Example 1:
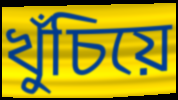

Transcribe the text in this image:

খুঁচিয়ে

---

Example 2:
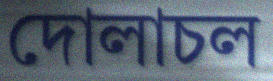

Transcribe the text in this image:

দোলাচল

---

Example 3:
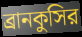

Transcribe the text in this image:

ব্রানকুসির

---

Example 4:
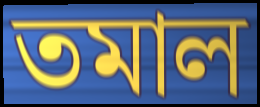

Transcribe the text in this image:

তমাল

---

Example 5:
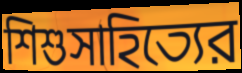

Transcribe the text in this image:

শিশুসাহিত্যের